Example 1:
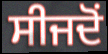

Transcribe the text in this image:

ਸੀਜਦੋਂ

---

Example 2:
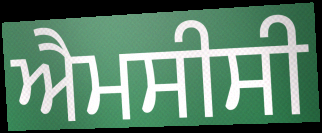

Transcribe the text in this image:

ਐਮਸੀਸੀ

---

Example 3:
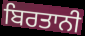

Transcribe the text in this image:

ਬਿਰਤਾਨੀ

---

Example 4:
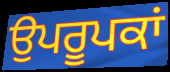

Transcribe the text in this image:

ਉਪਰੂਪਕਾਂ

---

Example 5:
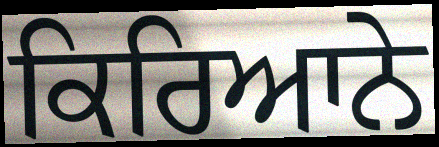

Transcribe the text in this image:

ਕਿਰਿਆਨੇ